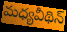
మధ్యవీథిన్